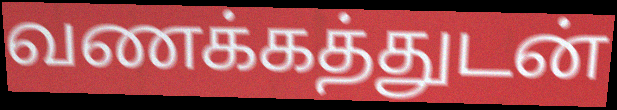
வணக்கத்துடன்